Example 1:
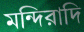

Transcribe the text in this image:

মন্দিরাদি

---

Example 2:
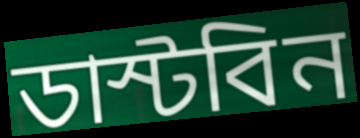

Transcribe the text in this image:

ডাস্টবিন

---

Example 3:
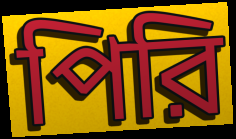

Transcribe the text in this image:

পিরি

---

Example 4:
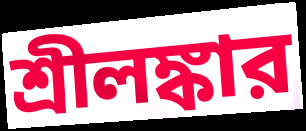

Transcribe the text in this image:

শ্রীলঙ্কার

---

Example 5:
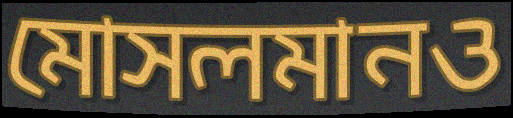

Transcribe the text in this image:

মোসলমানও